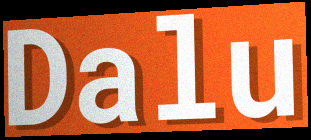
Dalu